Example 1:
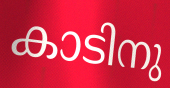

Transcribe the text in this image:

കാടിനു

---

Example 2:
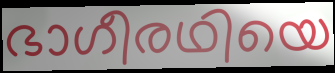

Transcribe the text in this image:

ഭാഗീരഥിയെ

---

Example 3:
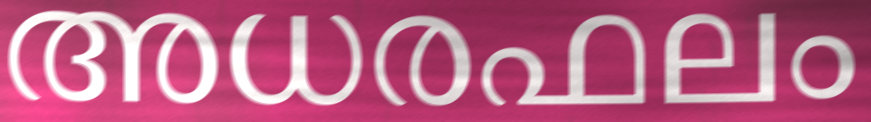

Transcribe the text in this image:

അധരഫലം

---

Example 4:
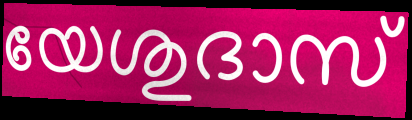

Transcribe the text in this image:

യേശുദാസ്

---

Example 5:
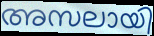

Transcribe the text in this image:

അസലായി